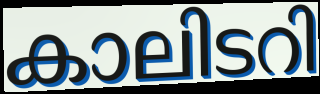
കാലിടറി